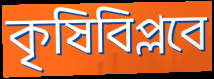
কৃষিবিপ্লবে